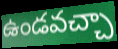
ఉండవచ్చా